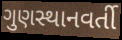
ગુણસ્થાનવર્તી